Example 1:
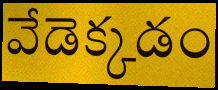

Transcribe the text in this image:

వేడెక్కడం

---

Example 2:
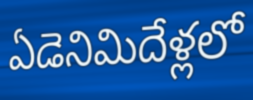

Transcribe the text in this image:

ఏడెనిమిదేళ్లలో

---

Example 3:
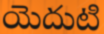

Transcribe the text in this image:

యెదుటి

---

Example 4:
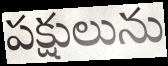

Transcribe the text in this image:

పక్షులును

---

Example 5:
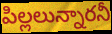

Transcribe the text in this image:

పిల్లలున్నారనీ